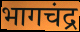
भागचंद्र